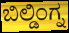
ಬಿಲ್ಡಿಂಗ್ನ